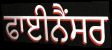
ਫਾਈਨੈਂਸਰ